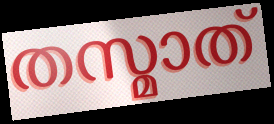
തസ്മാത്